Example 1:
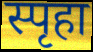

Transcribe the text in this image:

स्पृहा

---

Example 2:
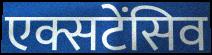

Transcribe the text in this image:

एक्सटेंसिव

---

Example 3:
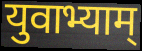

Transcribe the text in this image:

युवाभ्याम्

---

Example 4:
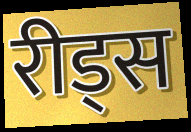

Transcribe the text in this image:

रीड्स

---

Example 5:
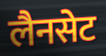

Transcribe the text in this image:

लैनसेट